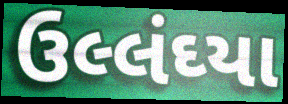
ઉલ્લંઘ્યા